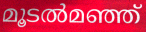
മൂടൽമഞ്ഞ്